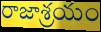
రాజాశ్రయం